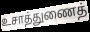
உசாத்துணைத்